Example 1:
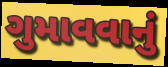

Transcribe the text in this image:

ગુમાવવાનું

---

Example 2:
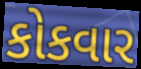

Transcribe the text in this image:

કોકવાર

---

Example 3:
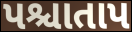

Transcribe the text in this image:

પશ્ચાતાપ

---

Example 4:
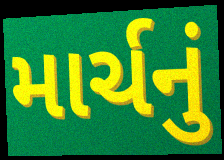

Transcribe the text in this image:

માર્ચનું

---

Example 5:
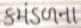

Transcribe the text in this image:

કમંડળના